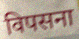
विपसना